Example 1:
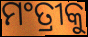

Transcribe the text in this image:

ମଂତ୍ରୀକୁ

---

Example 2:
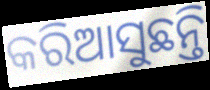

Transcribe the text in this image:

କରିଆସୁଛନ୍ତି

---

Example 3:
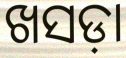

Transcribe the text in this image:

ଖସଡ଼ା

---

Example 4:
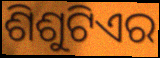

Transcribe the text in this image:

ଶିଶୁଟିଏର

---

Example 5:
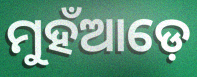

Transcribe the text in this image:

ମୁହଁଆଡ଼େ